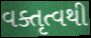
વક્તૃત્વથી